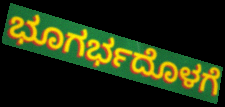
ಭೂಗರ್ಭದೊಳಗೆ